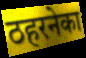
ठहरनेका